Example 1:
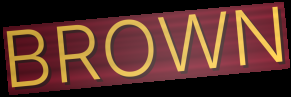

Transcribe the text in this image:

BROWN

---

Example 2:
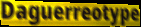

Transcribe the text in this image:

Daguerreotype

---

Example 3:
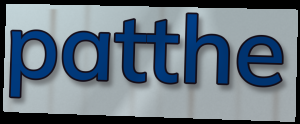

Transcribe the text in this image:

patthe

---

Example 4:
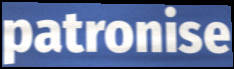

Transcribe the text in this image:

patronise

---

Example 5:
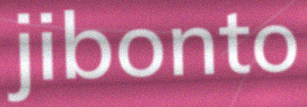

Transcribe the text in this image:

jibonto